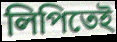
লিপিতেই